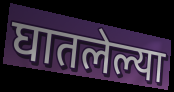
घातलेल्या